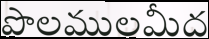
పొలములమీద